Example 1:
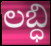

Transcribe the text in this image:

లబ్ధి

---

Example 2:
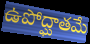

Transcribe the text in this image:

ఉపోద్ఘాతమే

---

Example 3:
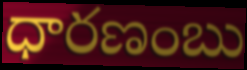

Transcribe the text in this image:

ధారణంబు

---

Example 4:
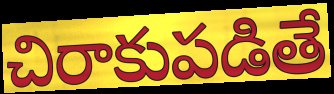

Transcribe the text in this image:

చిరాకుపడితే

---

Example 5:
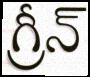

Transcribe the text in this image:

గ్రీన్